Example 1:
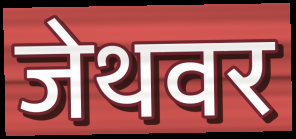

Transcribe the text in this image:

जेथवर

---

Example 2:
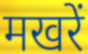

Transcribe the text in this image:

मखरें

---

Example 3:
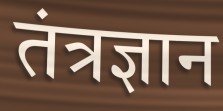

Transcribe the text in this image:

तंत्रज्ञान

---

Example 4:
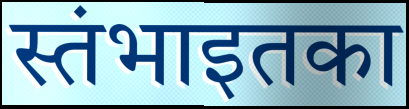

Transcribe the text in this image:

स्तंभाइतका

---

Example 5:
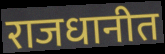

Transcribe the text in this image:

राजधानीत